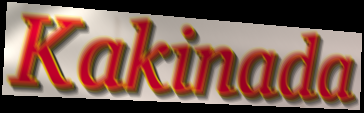
Kakinada